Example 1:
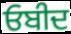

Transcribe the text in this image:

ਓਬੀਦ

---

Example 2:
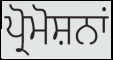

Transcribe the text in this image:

ਪ੍ਰੋਮੋਸ਼ਨਾਂ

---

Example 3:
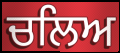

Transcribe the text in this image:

ਚਲਿਅ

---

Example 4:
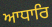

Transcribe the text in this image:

ਆਧਾਰਿ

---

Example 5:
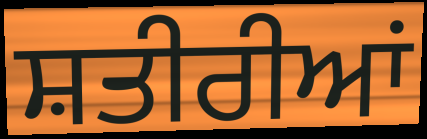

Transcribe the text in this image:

ਸ਼ਤੀਰੀਆਂ